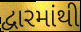
દ્વારમાંથી